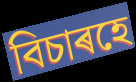
বিচাৰহে